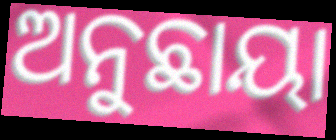
ଅନୁଛାୟା